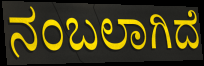
ನಂಬಲಾಗಿದೆ